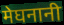
मेघनानी